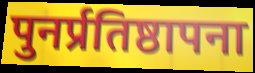
पुनर्प्रतिष्ठापना